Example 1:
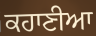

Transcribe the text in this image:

ਕਹਾਣੀਆ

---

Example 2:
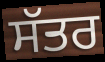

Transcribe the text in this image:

ਸੱਤਰ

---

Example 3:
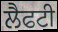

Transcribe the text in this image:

ਲੈਫਟੀ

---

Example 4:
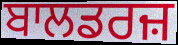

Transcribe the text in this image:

ਬਾਲਡਰਜ਼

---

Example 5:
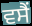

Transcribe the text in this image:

ਵਸੈਂ